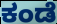
ಕಂಡೆ